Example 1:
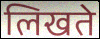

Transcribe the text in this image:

लिखते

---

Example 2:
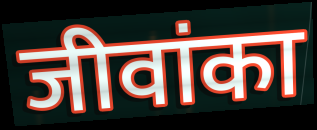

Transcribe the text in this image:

जीवांका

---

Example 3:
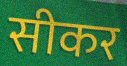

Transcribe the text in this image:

सीकर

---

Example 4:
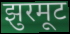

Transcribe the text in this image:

झुरमूट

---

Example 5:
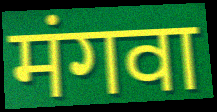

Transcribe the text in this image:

मंगवा